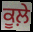
ਕੂਲ਼ੇ